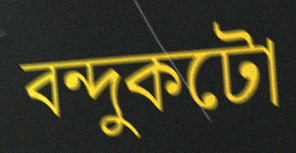
বন্দুকটো